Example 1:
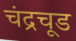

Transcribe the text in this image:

चंद्रचूड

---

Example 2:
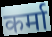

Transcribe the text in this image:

कर्मा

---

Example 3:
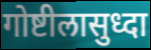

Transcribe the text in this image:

गोष्टीलासुध्दा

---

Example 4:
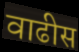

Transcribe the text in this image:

वाढीस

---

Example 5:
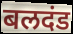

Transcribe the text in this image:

बलदंड